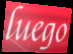
luego